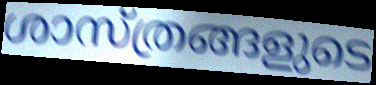
ശാസ്ത്രങ്ങളുടെ